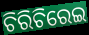
ଚିରିଚିରେଇ